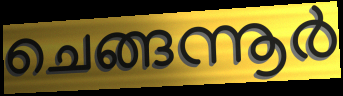
ചെങ്ങന്നൂർ